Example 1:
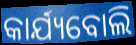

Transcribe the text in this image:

କାର୍ଯ୍ୟବୋଲି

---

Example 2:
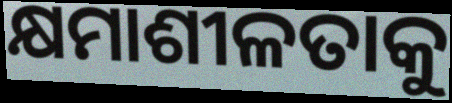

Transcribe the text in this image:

କ୍ଷମାଶୀଳତାକୁ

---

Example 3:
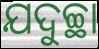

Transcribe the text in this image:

ଯଦୁଚ୍ଛା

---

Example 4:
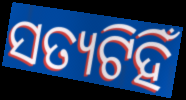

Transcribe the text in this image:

ସତ୍ୟଟିହିଁ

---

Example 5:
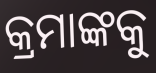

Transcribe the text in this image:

କ୍ରମାଙ୍କକୁ